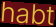
habt